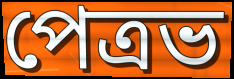
পেত্রভ